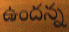
ఉందన్న